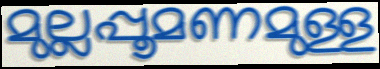
മുല്ലപ്പൂമണമുള്ള